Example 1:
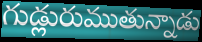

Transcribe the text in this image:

గుడ్లురుముతున్నాడు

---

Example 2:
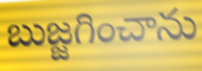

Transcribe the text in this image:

బుజ్జగించాను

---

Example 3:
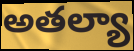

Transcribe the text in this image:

అతల్యా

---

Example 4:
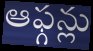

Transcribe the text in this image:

ఆఫ్గన్లు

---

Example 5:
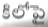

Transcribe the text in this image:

కిలోపై